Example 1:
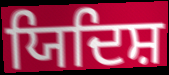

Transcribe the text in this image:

ਯਿਦਿਸ਼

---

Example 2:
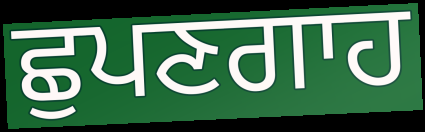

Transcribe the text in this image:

ਛੁਪਣਗਾਹ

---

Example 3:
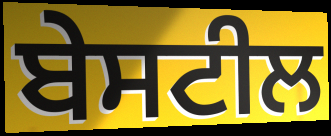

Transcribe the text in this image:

ਬੇਸਟੀਲ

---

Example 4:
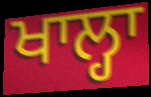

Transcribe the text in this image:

ਖਾਲ੍ਹਾ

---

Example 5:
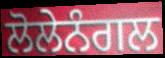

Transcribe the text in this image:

ਲੋਲੇਨੰਗਲ